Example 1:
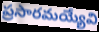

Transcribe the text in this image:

ప్రసారమయ్యేవి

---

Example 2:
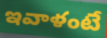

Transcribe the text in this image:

ఇవాళంటే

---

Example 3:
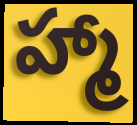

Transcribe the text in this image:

హ్మా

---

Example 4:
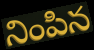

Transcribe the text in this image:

నింపిన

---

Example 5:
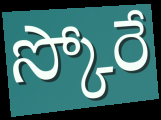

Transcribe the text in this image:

స్కోరే